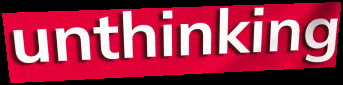
unthinking